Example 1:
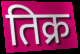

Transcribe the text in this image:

तिक्र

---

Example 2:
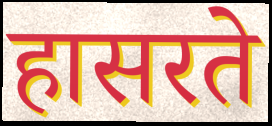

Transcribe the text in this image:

हासरते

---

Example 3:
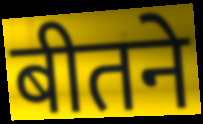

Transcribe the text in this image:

बीतने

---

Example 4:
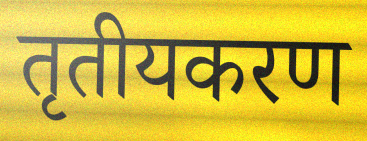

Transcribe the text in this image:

तृतीयकरण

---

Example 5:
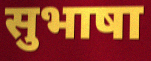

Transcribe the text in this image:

सुभाषा